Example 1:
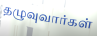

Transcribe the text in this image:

தழுவுவார்கள்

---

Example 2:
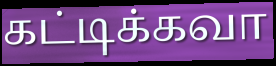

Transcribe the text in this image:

கட்டிக்கவா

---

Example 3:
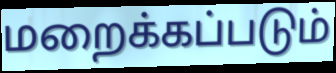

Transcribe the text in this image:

மறைக்கப்படும்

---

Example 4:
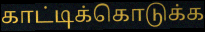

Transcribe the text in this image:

காட்டிக்கொடுக்க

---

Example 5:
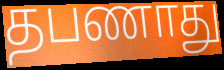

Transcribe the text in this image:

தபணாது